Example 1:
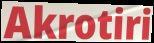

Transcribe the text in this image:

Akrotiri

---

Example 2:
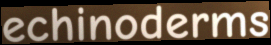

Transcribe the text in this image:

echinoderms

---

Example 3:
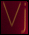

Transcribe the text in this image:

Vj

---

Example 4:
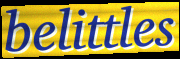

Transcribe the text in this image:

belittles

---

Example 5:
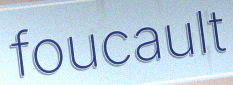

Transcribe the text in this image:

foucault